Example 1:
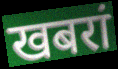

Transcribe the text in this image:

खबरां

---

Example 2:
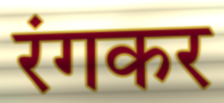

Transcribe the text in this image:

रंगकर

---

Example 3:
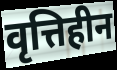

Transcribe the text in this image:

वृत्तिहीन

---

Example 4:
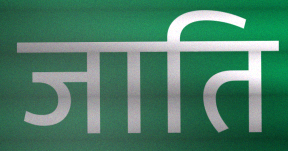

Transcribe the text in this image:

जाति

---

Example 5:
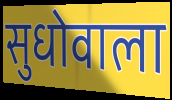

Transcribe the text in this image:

सुधोवाला